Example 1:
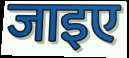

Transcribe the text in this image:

जाइए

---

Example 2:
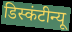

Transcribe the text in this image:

डिस्कंटीन्यू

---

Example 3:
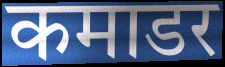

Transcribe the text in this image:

कमाडर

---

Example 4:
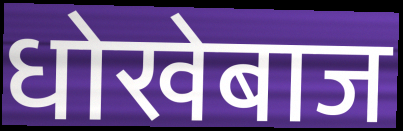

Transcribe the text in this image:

धोखेबाज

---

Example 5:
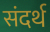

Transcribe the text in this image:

संदर्थ